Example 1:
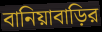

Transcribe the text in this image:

বানিয়াবাড়ির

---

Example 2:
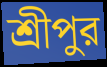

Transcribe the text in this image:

শ্রীপুর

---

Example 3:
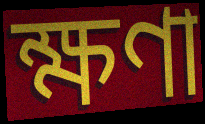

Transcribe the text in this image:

ক্ষণা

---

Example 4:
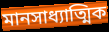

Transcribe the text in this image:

মানসাধ্যাত্মিক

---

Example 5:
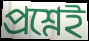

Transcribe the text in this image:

প্রশ্নেই